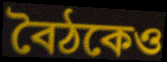
বৈঠকেও